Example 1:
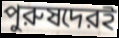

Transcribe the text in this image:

পুরুষদেরই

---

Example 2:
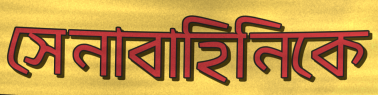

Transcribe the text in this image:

সেনাবাহিনিকে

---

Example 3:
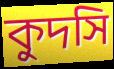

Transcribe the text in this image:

কুদসি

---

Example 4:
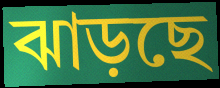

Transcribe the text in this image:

ঝাড়ছে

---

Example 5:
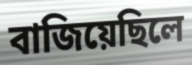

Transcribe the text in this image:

বাজিয়েছিলে